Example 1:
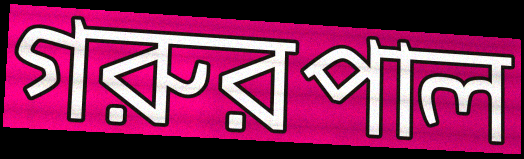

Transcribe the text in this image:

গরুরপাল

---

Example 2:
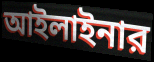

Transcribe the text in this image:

আইলাইনার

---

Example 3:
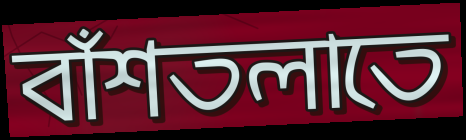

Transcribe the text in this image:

বাঁশতলাতে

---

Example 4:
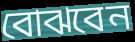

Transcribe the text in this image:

বোঝবেন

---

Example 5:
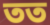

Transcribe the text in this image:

তত